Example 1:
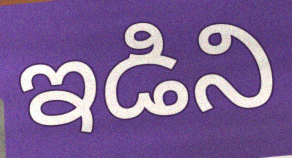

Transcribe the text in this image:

ఇడిని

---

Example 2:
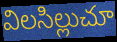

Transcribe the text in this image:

విలసిల్లుచూ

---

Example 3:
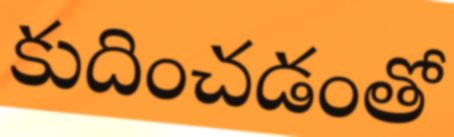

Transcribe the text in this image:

కుదించడంతో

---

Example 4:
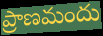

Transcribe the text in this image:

ప్రాణమందు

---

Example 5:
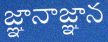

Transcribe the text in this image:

జ్ఞానాజ్ఞాన